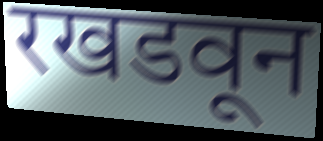
रखडवून